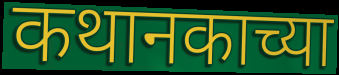
कथानकाच्या